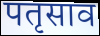
पतृसाव